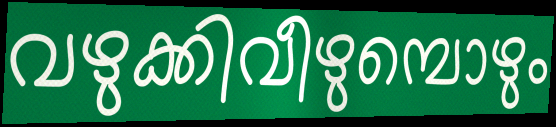
വഴുക്കിവീഴുമ്പൊഴും